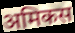
अमिकस